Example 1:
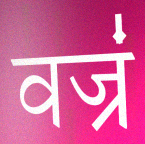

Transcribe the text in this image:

वज्रं॑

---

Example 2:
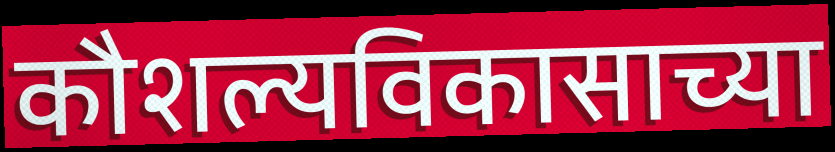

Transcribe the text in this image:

कौशल्यविकासाच्या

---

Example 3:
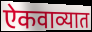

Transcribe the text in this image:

ऐकवाव्यात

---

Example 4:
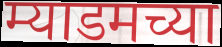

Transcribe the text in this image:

म्याडमच्या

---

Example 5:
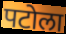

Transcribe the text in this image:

पटोला